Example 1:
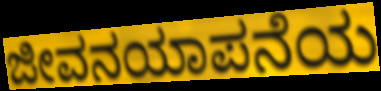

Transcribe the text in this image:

ಜೀವನಯಾಪನೆಯ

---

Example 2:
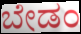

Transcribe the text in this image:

ಬೇಡಂ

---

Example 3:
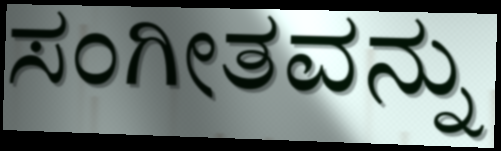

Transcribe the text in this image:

ಸಂಗೀತವನ್ನು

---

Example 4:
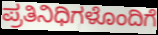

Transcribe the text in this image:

ಪ್ರತಿನಿಧಿಗಳೊಂದಿಗೆ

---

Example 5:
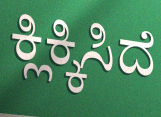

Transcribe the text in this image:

ಕ್ಲಿಕ್ಕಿಸಿದೆ